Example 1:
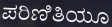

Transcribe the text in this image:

ಪರಿಣಿತಿಯೂ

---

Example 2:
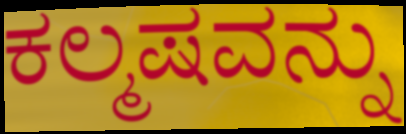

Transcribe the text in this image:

ಕಲ್ಮಷವನ್ನು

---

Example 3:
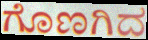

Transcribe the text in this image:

ಗೊಣಗಿದ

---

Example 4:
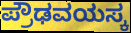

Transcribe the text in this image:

ಪ್ರೌಢವಯಸ್ಕ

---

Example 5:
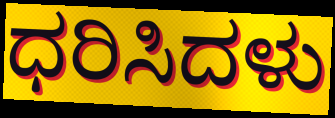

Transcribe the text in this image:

ಧರಿಸಿದಳು